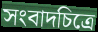
সংবাদচিত্রে